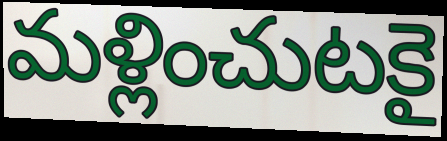
మళ్లించుటకై